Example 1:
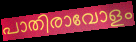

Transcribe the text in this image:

പാതിരാവോളം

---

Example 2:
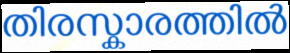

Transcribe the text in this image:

തിരസ്കാരത്തിൽ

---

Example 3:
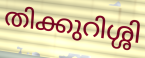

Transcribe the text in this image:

തിക്കുറിശ്ശി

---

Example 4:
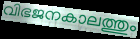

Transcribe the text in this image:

വിഭജനകാലത്തും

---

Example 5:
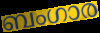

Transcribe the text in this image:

ബംഗാര